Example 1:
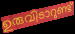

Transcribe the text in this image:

ഉരുവിടാറുണ്ട്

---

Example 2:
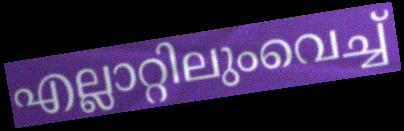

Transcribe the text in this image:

എല്ലാറ്റിലുംവെച്ച്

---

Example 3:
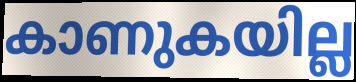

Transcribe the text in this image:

കാണുകയില്ല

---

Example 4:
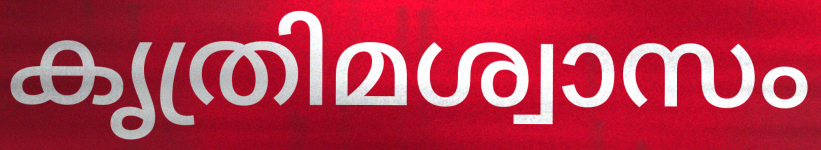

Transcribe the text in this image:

കൃത്രിമശ്വാസം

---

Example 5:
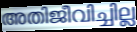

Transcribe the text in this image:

അതിജീവിച്ചില്ല